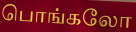
பொங்கலோ